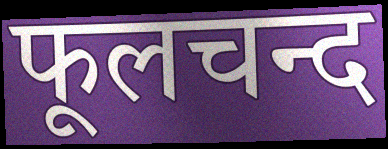
फूलचन्द